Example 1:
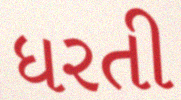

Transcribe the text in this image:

ધરતી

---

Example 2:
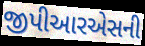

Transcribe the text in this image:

જીપીઆરએસની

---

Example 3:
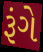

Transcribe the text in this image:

રૂંગે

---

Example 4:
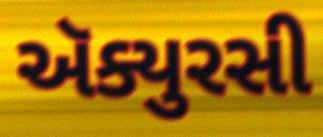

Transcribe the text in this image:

ઍક્યુરસી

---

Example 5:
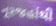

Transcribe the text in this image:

નૂરજહાંથી